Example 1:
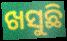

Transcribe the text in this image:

ଖସୁଛି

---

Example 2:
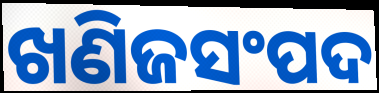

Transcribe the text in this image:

ଖଣିଜସଂପଦ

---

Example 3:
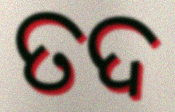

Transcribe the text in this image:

ତଦ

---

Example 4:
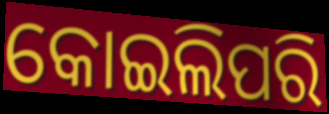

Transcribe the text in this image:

କୋଇଲିପରି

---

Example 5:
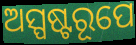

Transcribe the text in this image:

ଅସ୍ପଷ୍ଟରୂପେ